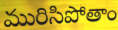
మురిసిపోతాం